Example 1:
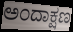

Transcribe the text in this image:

ಅಂದಾಕ್ಷಣ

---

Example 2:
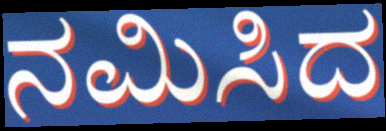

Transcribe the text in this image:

ನಮಿಸಿದ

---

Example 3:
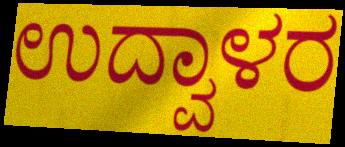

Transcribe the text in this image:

ಉದ್ವಾಳರ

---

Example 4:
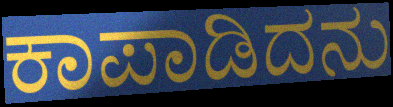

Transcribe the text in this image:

ಕಾಪಾಡಿದನು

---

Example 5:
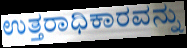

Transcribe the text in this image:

ಉತ್ತರಾಧಿಕಾರವನ್ನು